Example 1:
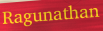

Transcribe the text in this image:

Ragunathan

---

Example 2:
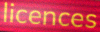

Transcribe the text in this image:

licences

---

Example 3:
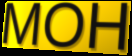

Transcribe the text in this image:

MOH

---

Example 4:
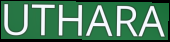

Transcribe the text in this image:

UTHARA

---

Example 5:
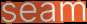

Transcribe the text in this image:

seam